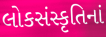
લોકસંસ્કૃતિનાં